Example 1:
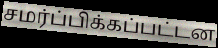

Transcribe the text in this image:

சமர்ப்பிக்கப்பட்டன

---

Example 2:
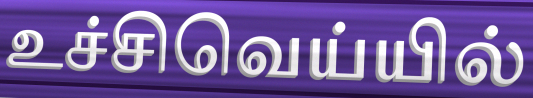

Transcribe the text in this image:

உச்சிவெய்யில்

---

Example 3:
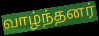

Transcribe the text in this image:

வாழ்ந்தனர்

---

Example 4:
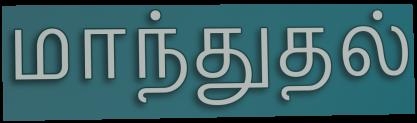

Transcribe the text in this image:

மாந்துதல்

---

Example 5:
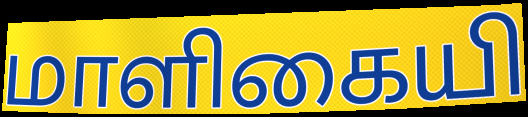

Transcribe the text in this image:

மாளிகையி